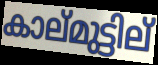
കാല്മുട്ടില്